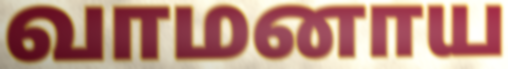
வாமனாய